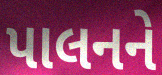
પાલનને